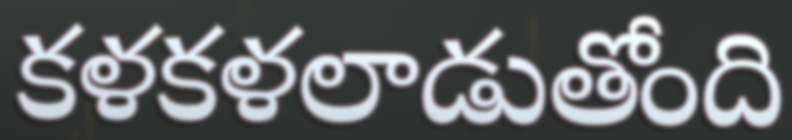
కళకళలాడుతోంది